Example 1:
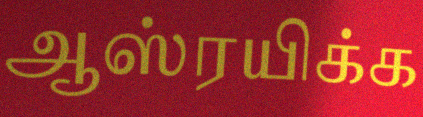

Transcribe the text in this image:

ஆஸ்ரயிக்க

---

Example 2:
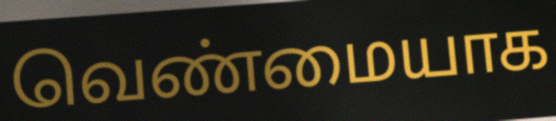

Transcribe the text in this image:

வெண்மையாக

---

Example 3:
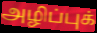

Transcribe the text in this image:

அழிப்புக்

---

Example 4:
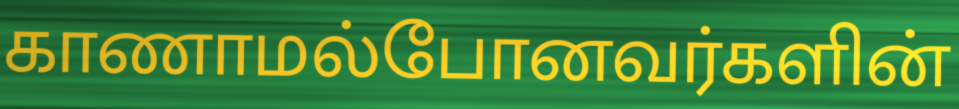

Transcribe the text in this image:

காணாமல்போனவர்களின்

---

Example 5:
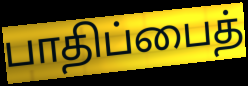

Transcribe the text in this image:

பாதிப்பைத்